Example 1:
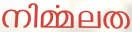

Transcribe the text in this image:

നിൎമ്മലത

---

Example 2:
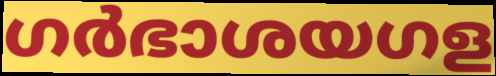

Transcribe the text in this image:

ഗർഭാശയഗള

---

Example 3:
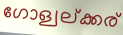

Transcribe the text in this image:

ഗോള്വല്ക്കര്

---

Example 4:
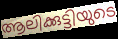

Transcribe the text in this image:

ആലിക്കുട്ടിയുടെ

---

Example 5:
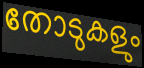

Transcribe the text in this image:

തോടുകളും